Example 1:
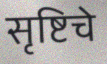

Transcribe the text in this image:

सृष्टिचे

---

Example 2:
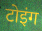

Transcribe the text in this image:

टोइंग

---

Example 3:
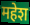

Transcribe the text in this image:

महेश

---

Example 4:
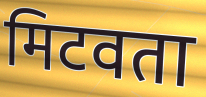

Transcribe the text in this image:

मिटवता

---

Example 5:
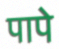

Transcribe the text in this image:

पापे